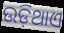
ଉଡ଼ିଥାଏ